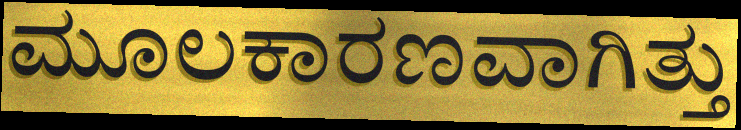
ಮೂಲಕಾರಣವಾಗಿತ್ತು